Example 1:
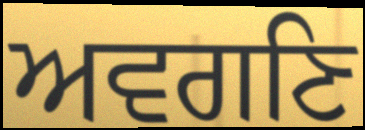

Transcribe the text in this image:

ਅਵਗਣਿ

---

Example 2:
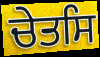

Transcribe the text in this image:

ਚੇਤਸਿ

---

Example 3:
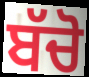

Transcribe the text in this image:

ਬੱਚੋ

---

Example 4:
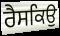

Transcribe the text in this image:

ਰੈਸਕਿਉ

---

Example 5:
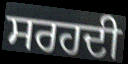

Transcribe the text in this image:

ਸਰਹਦੀ